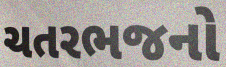
ચતરભજનો